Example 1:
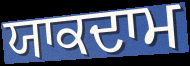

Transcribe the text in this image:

ਯਾਕਦਾਮ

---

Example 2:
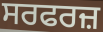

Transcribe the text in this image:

ਸਰਫਰਜ਼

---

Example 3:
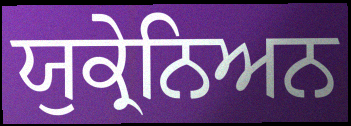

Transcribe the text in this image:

ਯੁਕ੍ਰੇਨਿਅਨ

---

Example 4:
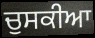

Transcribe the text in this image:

ਚੁਸਕੀਆ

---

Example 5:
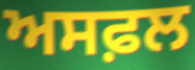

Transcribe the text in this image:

ਅਸਫ਼ਲ